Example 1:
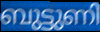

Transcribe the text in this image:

ബുട്ടുണി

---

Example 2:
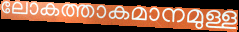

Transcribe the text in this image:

ലോകത്താകമാനമുള്ള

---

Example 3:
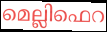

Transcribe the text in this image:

മെല്ലിഫെറ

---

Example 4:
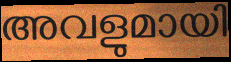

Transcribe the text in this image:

അവളുമായി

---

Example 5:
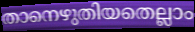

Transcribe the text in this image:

താനെഴുതിയതെല്ലാം